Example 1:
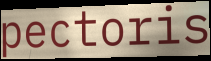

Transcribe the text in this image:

pectoris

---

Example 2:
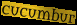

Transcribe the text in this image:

cucumbur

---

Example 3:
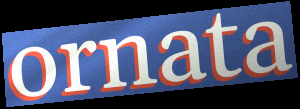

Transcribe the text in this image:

ornata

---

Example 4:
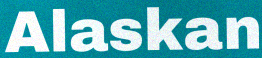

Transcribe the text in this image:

Alaskan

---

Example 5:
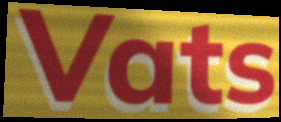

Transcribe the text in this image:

Vats